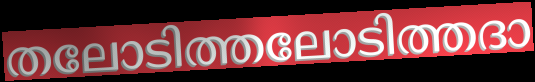
തലോടിത്തലോടിത്തദാ